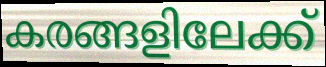
കരങ്ങളിലേക്ക്